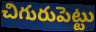
చిగురుపెట్టు